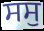
ਸਸੁ